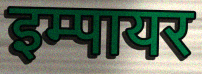
इम्पायर